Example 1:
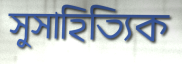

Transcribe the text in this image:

সুসাহিত্যিক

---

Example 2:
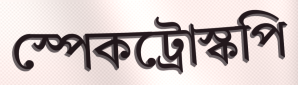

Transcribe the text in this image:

স্পেকট্রোস্কপি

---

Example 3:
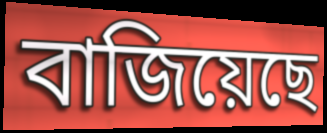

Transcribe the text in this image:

বাজিয়েছে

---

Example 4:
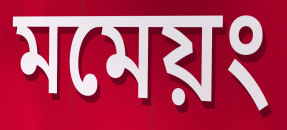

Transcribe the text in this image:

মমেয়ং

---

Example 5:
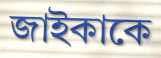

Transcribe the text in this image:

জাইকাকে